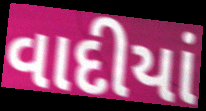
વાદીયાં